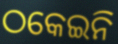
ଠକେଇନି